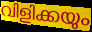
വിളിക്കയും